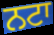
ਨਟਾ